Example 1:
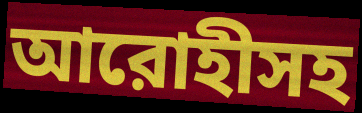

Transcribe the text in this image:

আরোহীসহ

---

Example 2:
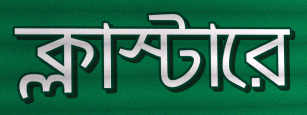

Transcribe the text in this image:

ক্লাস্টারে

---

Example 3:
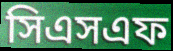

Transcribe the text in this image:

সিএসএফ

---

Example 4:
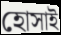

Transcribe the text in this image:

হোসাই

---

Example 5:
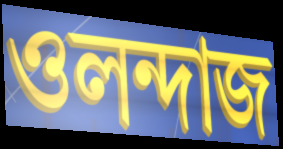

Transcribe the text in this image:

ওলন্দাজ